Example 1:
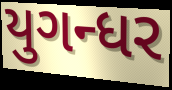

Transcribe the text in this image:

યુગન્ધર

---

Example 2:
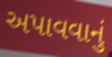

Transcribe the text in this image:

અપાવવાનું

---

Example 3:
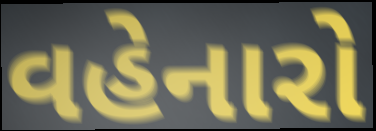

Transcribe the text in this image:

વહેનારો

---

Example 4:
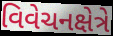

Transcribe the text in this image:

વિવેચનક્ષેત્રે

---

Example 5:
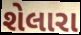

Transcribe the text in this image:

શેલારા